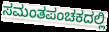
ಸಮಂತಪಂಚಕದಲ್ಲಿ